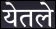
येतले